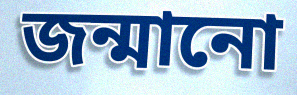
জন্মানো